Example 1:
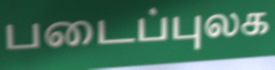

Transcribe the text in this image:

படைப்புலக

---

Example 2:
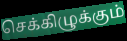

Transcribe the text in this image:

செக்கிழுக்கும்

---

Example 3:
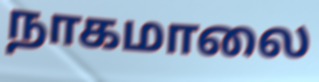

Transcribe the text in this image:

நாகமாலை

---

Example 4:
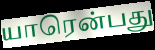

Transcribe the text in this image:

யாரென்பது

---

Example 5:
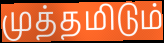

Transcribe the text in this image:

முத்தமிடும்